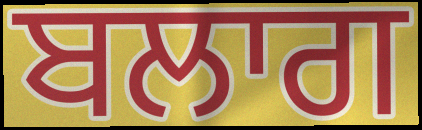
ਬਲਾਗ